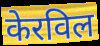
केरविल